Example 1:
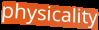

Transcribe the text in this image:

physicality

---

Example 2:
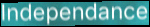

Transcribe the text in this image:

Independance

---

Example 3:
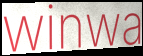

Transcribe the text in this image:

winwa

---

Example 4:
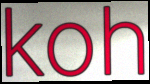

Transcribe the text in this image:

koh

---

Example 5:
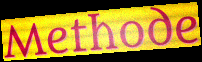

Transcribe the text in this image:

Methode